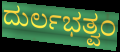
ದುರ್ಲಭತ್ವಂ